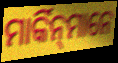
ମାର୍କିନ୍‌ମାନେ